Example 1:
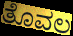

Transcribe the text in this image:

ತೊವಲ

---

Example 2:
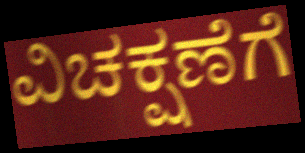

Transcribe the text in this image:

ವಿಚಕ್ಷಣೆಗೆ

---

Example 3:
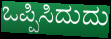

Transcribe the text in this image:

ಒಪ್ಪಿಸಿದುದು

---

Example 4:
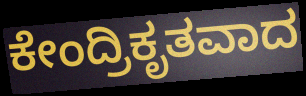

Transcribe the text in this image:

ಕೇಂದ್ರಿಕೃತವಾದ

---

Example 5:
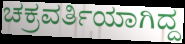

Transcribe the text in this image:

ಚಕ್ರವರ್ತಿಯಾಗಿದ್ದ